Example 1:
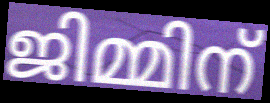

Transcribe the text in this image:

ജിമ്മിന്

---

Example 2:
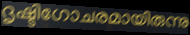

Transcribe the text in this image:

ദൃഷ്ടിഗോചരമായിരുന്നു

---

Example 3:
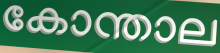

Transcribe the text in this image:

കോന്താല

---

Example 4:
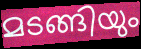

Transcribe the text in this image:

മടങ്ങിയും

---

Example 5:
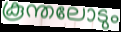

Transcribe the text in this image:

കൂന്തലോടും